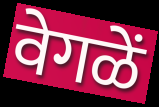
वेगळें